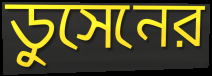
ডুসেনের